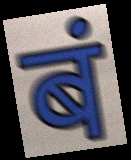
बं